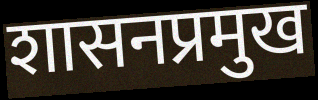
शासनप्रमुख